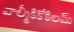
వాల్మీకికోకిలమ్